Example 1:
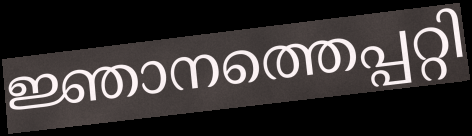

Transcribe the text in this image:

ജ്ഞാനത്തെപ്പറ്റി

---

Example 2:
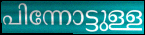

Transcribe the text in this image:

പിന്നോട്ടുള്ള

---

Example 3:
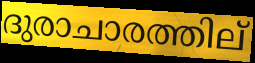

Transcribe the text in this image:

ദുരാചാരത്തില്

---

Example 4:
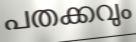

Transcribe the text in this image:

പതക്കവും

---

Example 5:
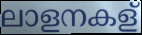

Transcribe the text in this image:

ലാളനകള്